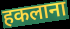
हकलाना